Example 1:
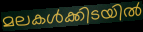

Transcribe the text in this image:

മലകൾക്കിടയിൽ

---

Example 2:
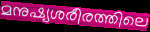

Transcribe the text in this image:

മനുഷ്യശരീരത്തിലെ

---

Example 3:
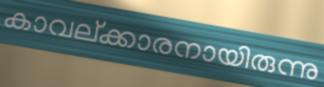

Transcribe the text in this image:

കാവല്ക്കാരനായിരുന്നു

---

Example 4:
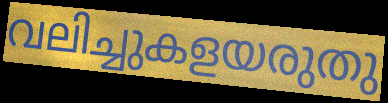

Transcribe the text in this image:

വലിച്ചുകളയരുതു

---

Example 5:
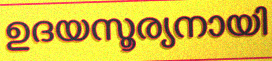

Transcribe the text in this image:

ഉദയസൂര്യനായി